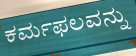
ಕರ್ಮಫಲವನ್ನು